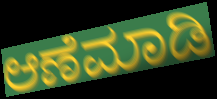
ಆಣೆಮಾಡಿ